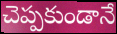
చెప్పకుండానే